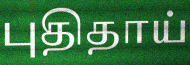
புதிதாய்